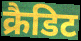
क्रैडिट